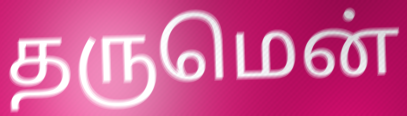
தருமென்